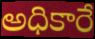
అధికారే